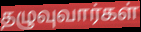
தழுவுவார்கள்